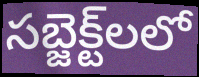
సబ్జెక్ట్‌లలో